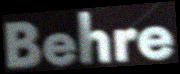
Behre